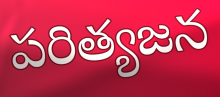
పరిత్యజన